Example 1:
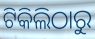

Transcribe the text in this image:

ଟିକିଲିଠାରୁ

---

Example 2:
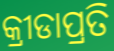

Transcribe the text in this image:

କ୍ରୀଡାପ୍ରତି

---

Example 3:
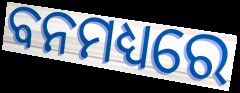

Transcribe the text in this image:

ବନମଧ୍ୟରେ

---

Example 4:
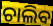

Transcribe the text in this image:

ଚାଲିବ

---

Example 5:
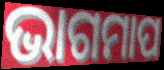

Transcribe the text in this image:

ଭାଗମାପ